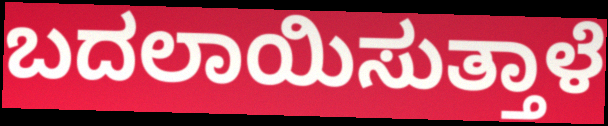
ಬದಲಾಯಿಸುತ್ತಾಳೆ